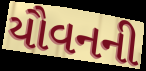
યૌવનની